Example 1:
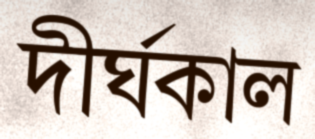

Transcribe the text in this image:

দীৰ্ঘকাল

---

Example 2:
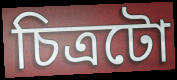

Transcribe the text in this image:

চিত্ৰটো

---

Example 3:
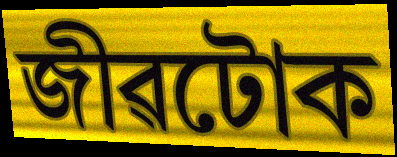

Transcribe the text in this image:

জীৱটোক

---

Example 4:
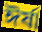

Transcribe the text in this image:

ঈৰ্ষা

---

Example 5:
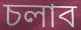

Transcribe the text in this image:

চলাব